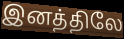
இனத்திலே